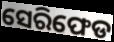
ସେରିଫେଡ